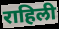
राहिली